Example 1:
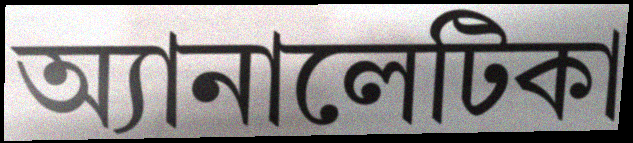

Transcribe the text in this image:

অ্যানালেটিকা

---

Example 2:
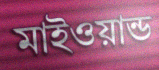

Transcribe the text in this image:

মাইওয়ান্ড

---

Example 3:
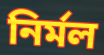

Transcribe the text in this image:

নির্মল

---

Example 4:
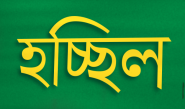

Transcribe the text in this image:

হচ্ছিল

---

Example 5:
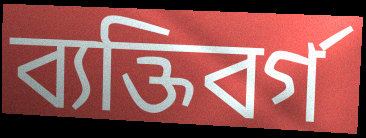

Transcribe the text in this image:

ব্যক্তিবর্গ